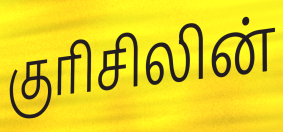
குரிசிலின்